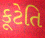
કૂટેતિ